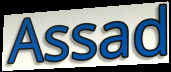
Assad